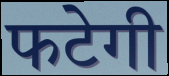
फटेगी